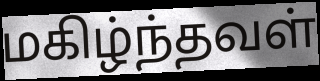
மகிழ்ந்தவள்